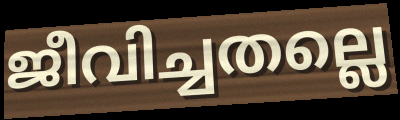
ജീവിച്ചതല്ലെ